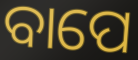
ବାପେ